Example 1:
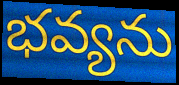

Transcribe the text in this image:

భవ్యను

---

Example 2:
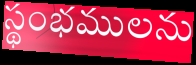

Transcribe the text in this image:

స్థంభములను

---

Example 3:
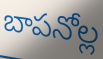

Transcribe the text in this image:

బాపనోల్ల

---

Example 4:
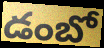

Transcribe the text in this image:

డంబో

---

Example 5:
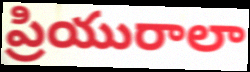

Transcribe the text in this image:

ప్రియురాలా